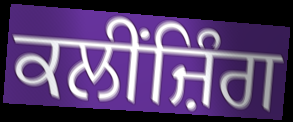
ਕਲੀਂਜ਼ਿੰਗ